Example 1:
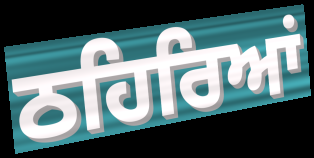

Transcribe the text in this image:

ਠਹਿਰਿਆਂ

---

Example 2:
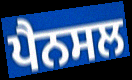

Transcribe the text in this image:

ਪੈਨਸਲ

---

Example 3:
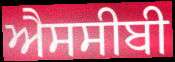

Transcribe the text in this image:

ਐਸਸੀਬੀ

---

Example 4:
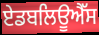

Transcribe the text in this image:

ਏਡਬਲਿਊਐੱਸ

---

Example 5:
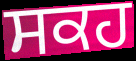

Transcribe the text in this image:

ਸਕਹ